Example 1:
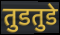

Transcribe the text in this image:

तुडतुडे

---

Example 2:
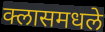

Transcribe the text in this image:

क्लासमधले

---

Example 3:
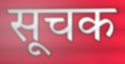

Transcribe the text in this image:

सूचक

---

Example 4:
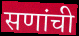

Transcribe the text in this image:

सणांची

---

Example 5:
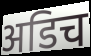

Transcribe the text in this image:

अडिच